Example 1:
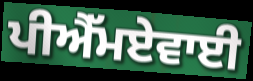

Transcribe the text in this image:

ਪੀਐੱਮਏਵਾਈ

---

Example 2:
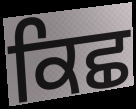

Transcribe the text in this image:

ਕਿਛ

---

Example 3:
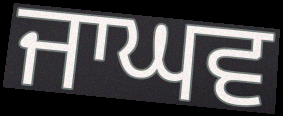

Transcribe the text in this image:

ਜਾਘਵ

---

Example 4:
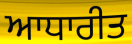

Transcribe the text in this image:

ਆਧਾਰੀਤ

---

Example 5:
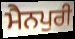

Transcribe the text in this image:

ਮੈਨਪੁਰੀ